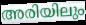
അരിയിലും